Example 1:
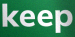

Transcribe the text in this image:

keep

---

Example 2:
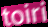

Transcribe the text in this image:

toiri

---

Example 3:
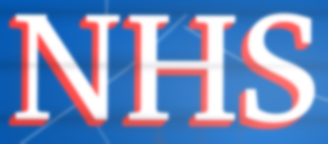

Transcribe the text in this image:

NHS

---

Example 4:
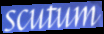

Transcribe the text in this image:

scutum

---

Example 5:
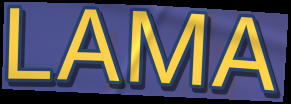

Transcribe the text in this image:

LAMA